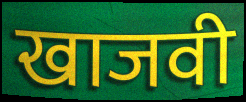
खाजवी